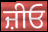
ਜ਼ੀਓ